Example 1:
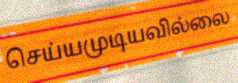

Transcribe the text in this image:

செய்யமுடியவில்லை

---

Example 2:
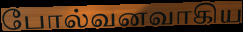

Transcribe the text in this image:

போல்வனவாகிய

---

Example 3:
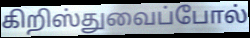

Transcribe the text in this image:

கிறிஸ்துவைப்போல்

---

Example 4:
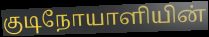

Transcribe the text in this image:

குடிநோயாளியின்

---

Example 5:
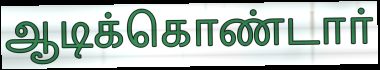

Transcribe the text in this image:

ஆடிக்கொண்டார்